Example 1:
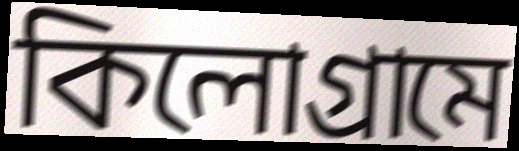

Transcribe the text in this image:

কিলোগ্রামে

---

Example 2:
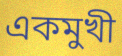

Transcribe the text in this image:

একমুখী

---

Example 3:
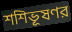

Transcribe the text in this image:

শশিভূষণর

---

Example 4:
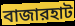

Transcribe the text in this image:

বাজারহাট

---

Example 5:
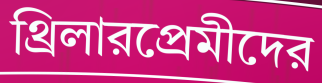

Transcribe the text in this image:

থ্রিলারপ্রেমীদের